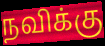
நவிக்கு